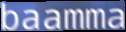
baamma